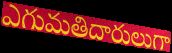
ఎగుమతిదారులుగా